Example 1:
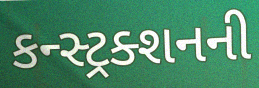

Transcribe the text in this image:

કન્સ્ટ્રક્શનની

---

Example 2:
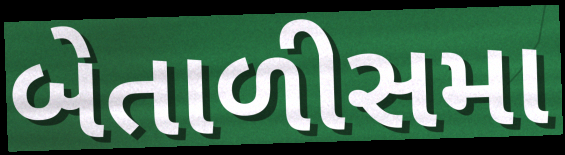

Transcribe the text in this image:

બેતાળીસમા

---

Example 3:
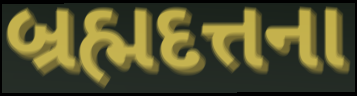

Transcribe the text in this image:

બ્રહ્મદત્તના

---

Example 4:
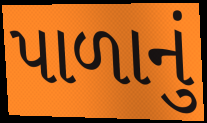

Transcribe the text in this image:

પાળાનું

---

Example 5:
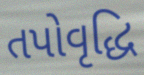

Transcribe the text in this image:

તપોવૃદ્ધિ